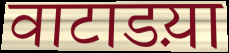
वाटाडय़ा